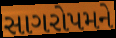
સાગરોપમને